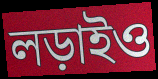
লড়াইও